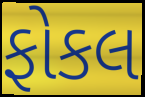
ફોકલ